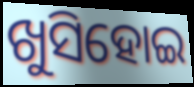
ଖୁସିହୋଇ